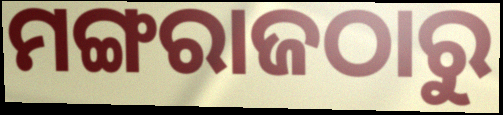
ମଙ୍ଗରାଜଠାରୁ